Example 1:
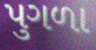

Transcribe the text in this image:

પુગળા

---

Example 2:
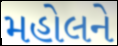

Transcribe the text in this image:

મહોલને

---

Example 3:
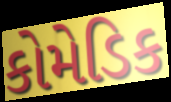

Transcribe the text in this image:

કોમેડિક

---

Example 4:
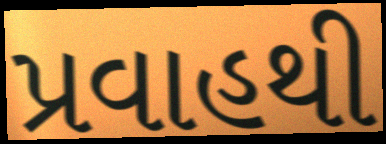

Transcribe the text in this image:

પ્રવાહથી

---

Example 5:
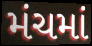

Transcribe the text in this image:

મંચમાં